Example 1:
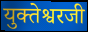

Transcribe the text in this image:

युक्तेश्वरजी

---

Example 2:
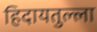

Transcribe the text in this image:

हिदायतुल्ला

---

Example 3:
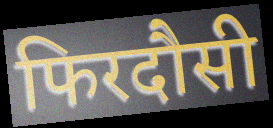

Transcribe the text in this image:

फिरदौसी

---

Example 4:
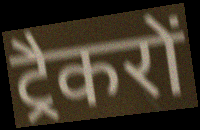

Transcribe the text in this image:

ट्रैकरों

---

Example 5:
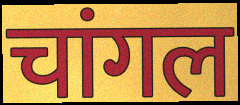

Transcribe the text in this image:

चांगल